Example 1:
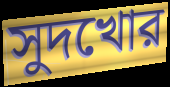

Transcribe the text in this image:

সুদখোর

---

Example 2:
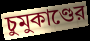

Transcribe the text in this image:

চুমুকাণ্ডের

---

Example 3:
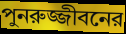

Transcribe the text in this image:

পুনরুজ্জীবনের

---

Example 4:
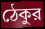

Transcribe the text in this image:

ঠেকুর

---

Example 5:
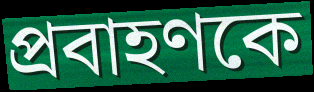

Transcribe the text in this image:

প্রবাহণকে